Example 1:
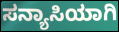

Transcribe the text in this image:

ಸನ್ಯಾಸಿಯಾಗಿ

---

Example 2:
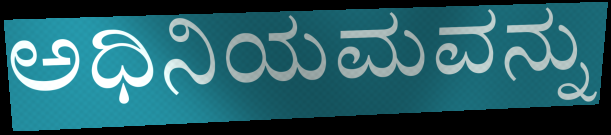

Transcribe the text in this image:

ಅಧಿನಿಯಮವನ್ನು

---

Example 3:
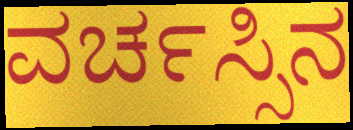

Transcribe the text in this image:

ವರ್ಚಸ್ಸಿನ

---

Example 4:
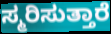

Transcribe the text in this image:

ಸ್ಮರಿಸುತ್ತಾರೆ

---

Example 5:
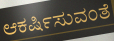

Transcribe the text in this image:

ಆಕರ್ಷಿಸುವಂತೆ